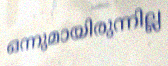
ഒന്നുമായിരുന്നില്ല